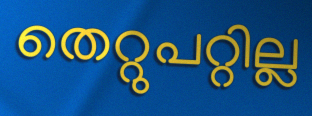
തെറ്റുപറ്റില്ല